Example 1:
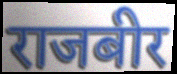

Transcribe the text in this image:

राजबीर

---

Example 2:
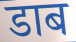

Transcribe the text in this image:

डाब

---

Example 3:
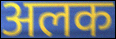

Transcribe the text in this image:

अलक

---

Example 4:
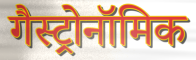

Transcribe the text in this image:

गैस्ट्रोनॉमिक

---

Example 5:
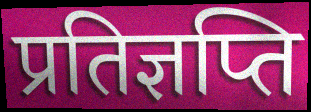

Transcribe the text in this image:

प्रतिज्ञप्ति